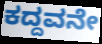
ಕದ್ದವನೇ